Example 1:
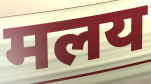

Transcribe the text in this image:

मलय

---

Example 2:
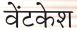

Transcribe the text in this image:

वेंटकेश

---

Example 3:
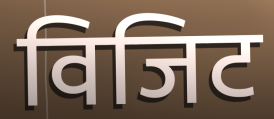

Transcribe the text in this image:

विजिट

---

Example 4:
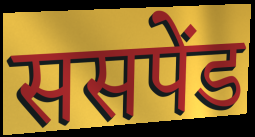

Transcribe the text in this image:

ससपेंड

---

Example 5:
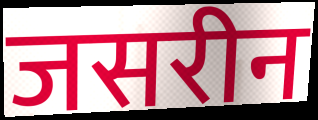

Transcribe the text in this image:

जसरीन